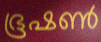
ഭൂഷൺ